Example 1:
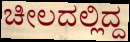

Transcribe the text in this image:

ಚೀಲದಲ್ಲಿದ್ದ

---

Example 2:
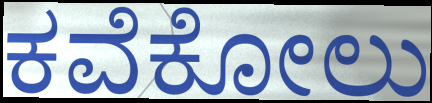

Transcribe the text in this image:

ಕವೆಕೋಲು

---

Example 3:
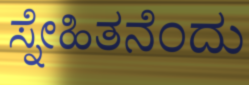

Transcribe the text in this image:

ಸ್ನೇಹಿತನೆಂದು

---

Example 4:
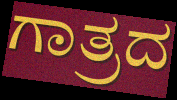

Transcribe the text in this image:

ಗಾತ್ರದ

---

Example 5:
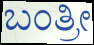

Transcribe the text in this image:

ಬಂತ್ರೀ